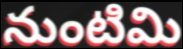
నుంటిమి